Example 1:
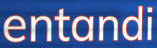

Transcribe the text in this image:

entandi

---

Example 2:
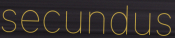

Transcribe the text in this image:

secundus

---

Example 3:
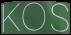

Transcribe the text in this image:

KOS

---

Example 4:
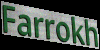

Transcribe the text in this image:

Farrokh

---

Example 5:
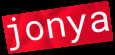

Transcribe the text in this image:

jonya